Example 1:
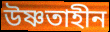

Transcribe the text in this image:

উষ্ণতাহীন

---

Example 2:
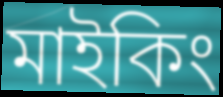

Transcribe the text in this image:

মাইকিং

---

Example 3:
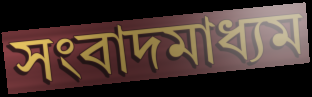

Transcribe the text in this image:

সংবাদমাধ্যম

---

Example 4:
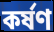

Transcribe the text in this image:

কর্ষণ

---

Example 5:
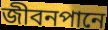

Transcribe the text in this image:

জীবনপানে